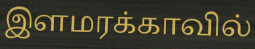
இளமரக்காவில்